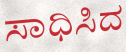
ಸಾಧಿಸಿದ